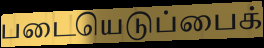
படையெடுப்பைக்